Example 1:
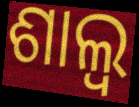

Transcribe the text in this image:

ଶାଲ୍ୱ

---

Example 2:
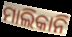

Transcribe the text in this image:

ମାଲିକାନି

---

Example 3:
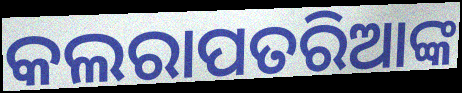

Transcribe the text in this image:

କଲରାପତରିଆଙ୍କ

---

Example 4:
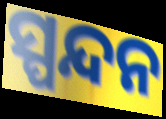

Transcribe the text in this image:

ସ୍ପନ୍ଦନ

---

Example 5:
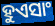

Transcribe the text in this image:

ହୁଏସାଂ